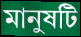
মানুষটি